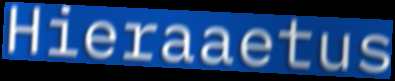
Hieraaetus